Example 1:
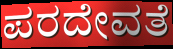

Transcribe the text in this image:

ಪರದೇವತೆ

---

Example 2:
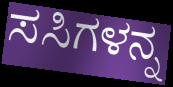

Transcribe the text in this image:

ಸಸಿಗಳನ್ನ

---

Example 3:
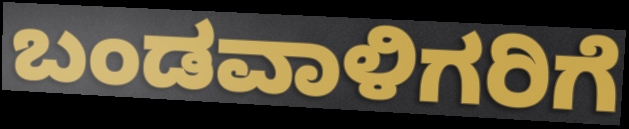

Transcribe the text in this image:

ಬಂಡವಾಳಿಗರಿಗೆ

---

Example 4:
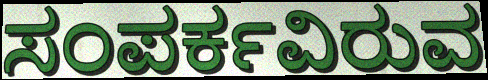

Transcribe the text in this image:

ಸಂಪರ್ಕವಿರುವ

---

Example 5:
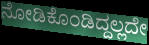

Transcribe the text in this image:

ನೋಡಿಕೊಂಡಿದ್ದಲ್ಲದೇ